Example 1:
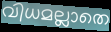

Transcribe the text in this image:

വിധമല്ലാതെ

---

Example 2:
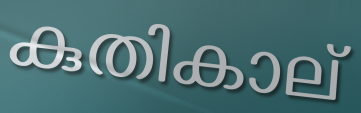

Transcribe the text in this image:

കുതികാല്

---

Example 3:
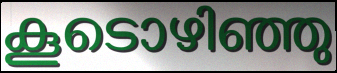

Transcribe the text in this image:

കൂടൊഴിഞ്ഞു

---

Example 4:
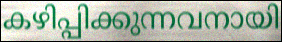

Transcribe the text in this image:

കഴിപ്പിക്കുന്നവനായി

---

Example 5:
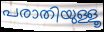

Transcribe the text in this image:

പരാതിയുള്ളൂ